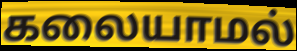
கலையாமல்